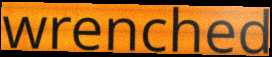
wrenched